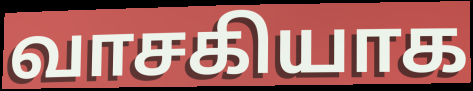
வாசகியாக